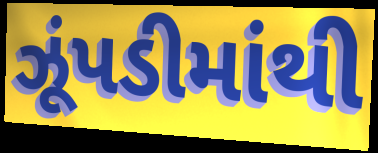
ઝૂંપડીમાંથી